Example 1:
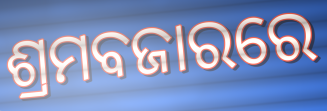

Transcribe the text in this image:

ଶ୍ରମବଜାରରେ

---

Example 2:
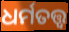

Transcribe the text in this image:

ଧର୍ମତତ୍ତ୍ଵ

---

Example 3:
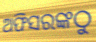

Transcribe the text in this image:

ଅଫିସରଙ୍କଠୁ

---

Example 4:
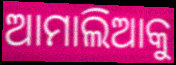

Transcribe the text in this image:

ଆମାଲିଆକୁ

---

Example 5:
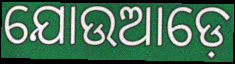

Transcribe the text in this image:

ଯୋଉଆଡ଼େ